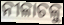
ନୀଳାଚଳୁ